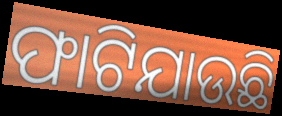
ଫାଟିଯାଉଛି